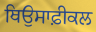
ਥਿਉਸਾਫ਼ੀਕਲ